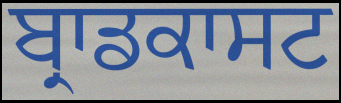
ਬ੍ਰਾਡਕਾਸਟ